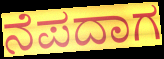
ನೆಪದಾಗ